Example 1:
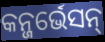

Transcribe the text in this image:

କନ୍ଜର୍ଭେସନ୍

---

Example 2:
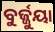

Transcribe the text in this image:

ବୁର୍ଜ୍ଜୁୟା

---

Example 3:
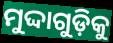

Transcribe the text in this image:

ମୁଦ୍ଦାଗୁଡ଼ିକୁ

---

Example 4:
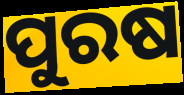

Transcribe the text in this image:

ପୁରଷ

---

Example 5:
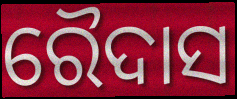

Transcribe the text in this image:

ରୈଦାସ